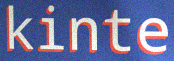
kinte